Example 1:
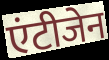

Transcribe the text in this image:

एंटीजेन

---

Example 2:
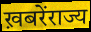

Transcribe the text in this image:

ख़बरेंराज्य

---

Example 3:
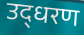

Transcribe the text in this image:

उद्धरण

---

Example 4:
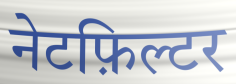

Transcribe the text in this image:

नेटफ़िल्टर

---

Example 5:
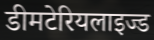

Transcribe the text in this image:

डीमटेरियलाइज्ड